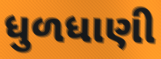
ધુળધાણી